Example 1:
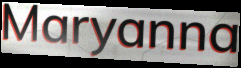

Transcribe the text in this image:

Maryanna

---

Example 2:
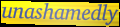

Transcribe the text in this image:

unashamedly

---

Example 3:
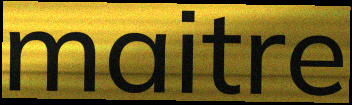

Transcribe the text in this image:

maitre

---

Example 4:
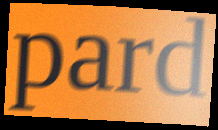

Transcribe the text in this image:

pard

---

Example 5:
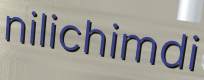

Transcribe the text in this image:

nilichimdi